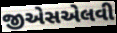
જીએસએલવી